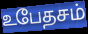
உபேதசம்